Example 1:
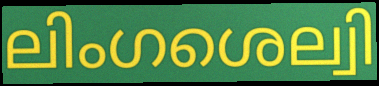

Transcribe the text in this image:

ലിംഗശെല്വി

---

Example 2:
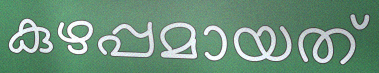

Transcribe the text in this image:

കുഴപ്പമായത്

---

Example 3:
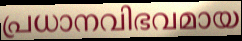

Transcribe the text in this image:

പ്രധാനവിഭവമായ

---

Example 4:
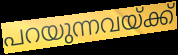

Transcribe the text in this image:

പറയുന്നവയ്ക്ക്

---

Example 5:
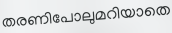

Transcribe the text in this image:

തരണിപോലുമറിയാതെ